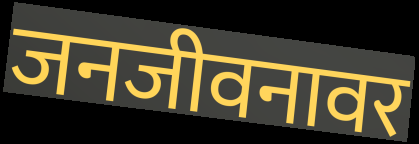
जनजीवनावर